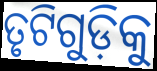
ତୃଟିଗୁଡ଼ିକୁ